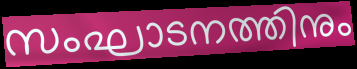
സംഘാടനത്തിനും